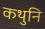
कथुनि